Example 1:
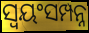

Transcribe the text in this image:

ସ୍ବୟଂସମ୍ପନ୍ନ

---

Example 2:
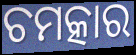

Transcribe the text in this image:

ଚମତ୍କାର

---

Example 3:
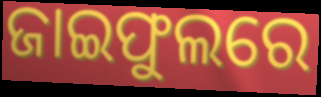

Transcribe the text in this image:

ଜାଇଫୁଲରେ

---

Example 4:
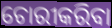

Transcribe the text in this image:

ଚୋରୀକରିବା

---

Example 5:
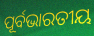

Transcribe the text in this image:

ପୂର୍ବଭାରତୀୟ